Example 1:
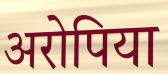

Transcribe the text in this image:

अरोपिया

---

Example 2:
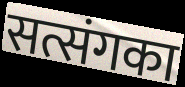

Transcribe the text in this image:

सत्संगका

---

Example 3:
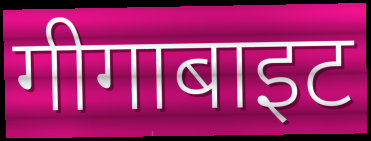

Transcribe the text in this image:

गीगाबाइट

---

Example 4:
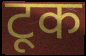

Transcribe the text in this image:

टूक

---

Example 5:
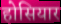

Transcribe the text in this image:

होसियार